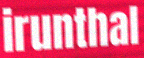
irunthal